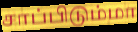
சாப்பிடும்மா